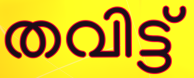
തവിട്ട്